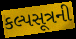
કલ્પસૂત્રની